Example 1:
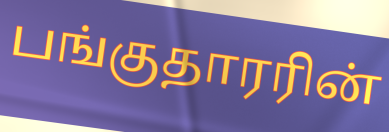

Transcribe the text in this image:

பங்குதாரரின்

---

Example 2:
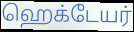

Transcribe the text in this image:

ஹெக்டேயர்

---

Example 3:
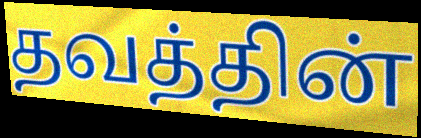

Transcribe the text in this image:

தவத்தின்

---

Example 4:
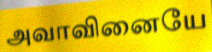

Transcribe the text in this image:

அவாவினையே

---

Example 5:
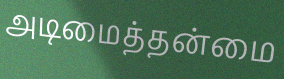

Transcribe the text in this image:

அடிமைத்தன்மை